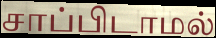
சாப்பிடாமல்